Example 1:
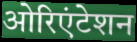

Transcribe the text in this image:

ओरिएंटेशन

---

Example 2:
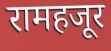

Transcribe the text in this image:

रामहजूर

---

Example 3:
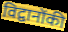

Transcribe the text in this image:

विद्वानोंकी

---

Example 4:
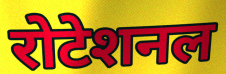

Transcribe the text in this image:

रोटेशनल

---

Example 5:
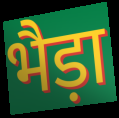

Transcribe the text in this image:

भैड़ा